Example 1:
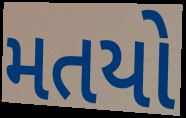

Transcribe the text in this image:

મતયો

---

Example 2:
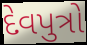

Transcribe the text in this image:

દેવપુત્રો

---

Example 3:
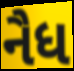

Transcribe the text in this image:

નૈધ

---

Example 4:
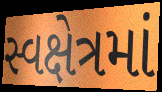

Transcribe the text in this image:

સ્વક્ષેત્રમાં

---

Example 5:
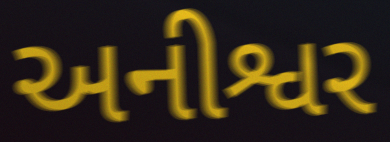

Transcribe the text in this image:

અનીશ્વર